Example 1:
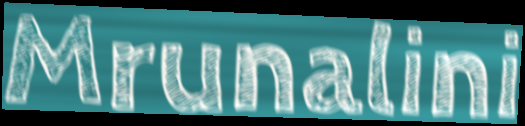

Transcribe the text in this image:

Mrunalini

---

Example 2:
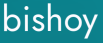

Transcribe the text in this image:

bishoy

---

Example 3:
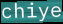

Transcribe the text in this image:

chiye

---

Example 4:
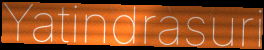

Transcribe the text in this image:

Yatindrasuri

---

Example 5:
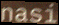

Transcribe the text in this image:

nasi